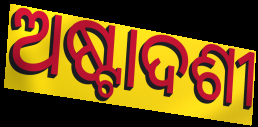
ଅଷ୍ଟାଦଶୀ